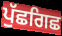
ਪੁੱਛਗਿਛ